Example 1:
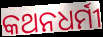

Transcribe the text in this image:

କଥନଧର୍ମୀ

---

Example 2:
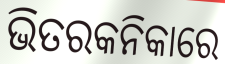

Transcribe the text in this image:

ଭିତରକନିକାରେ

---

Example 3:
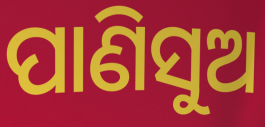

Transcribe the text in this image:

ପାଣିସୁଅ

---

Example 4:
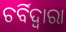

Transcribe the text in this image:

ଚର୍ବିଦ୍ଵାରା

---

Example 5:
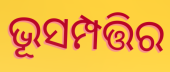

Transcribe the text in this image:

ଭୂସମ୍ପତ୍ତିର